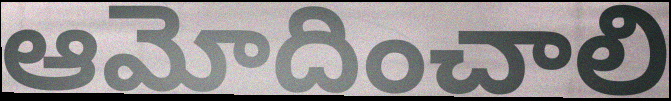
ఆమోదించాలి